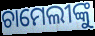
ଚାମେଲୀଙ୍କୁ